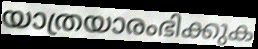
യാത്രയാരംഭിക്കുക